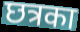
छत्रका